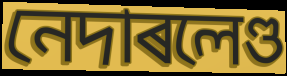
নেদাৰলেণ্ড